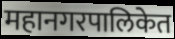
महानगरपालिकेत